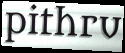
pithru